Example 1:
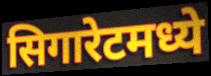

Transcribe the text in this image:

सिगारेटमध्ये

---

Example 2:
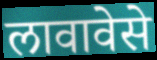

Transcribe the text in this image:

लावावेसे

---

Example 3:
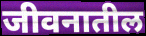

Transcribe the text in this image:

जीवनातील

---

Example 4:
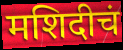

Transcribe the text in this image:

मशिदीचं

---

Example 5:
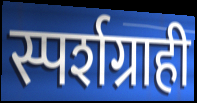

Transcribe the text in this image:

स्पर्शग्राही